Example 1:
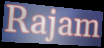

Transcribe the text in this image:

Rajam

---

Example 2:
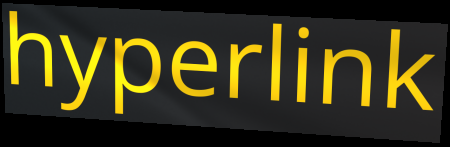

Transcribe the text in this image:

hyperlink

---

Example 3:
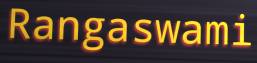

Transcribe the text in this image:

Rangaswami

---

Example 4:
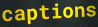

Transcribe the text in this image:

captions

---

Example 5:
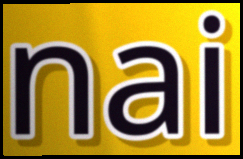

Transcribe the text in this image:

nai